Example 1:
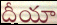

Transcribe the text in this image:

దీయా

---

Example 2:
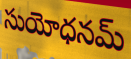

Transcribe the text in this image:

సుయోధనమ్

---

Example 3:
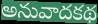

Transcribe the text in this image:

అనువాదకథ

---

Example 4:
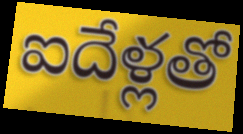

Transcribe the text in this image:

ఐదేళ్లతో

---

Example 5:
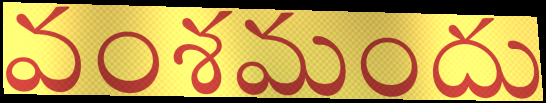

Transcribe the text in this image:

వంశమందు